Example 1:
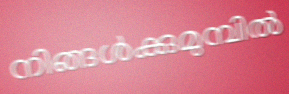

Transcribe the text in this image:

നിങ്ങൾക്കുമുമ്പിൽ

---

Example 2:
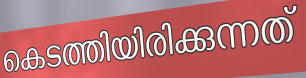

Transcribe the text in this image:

കെടത്തിയിരിക്കുന്നത്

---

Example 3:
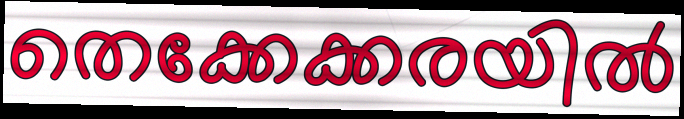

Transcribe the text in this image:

തെക്കേക്കരയിൽ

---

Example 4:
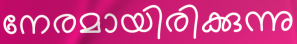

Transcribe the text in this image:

നേരമായിരിക്കുന്നു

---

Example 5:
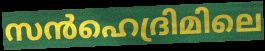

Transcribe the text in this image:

സൻഹെദ്രിമിലെ